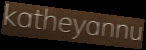
katheyannu